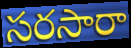
సరసారా